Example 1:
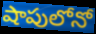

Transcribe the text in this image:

షాపులోనో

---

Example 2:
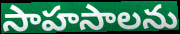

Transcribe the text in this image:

సాహసాలను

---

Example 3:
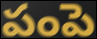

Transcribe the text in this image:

పంపె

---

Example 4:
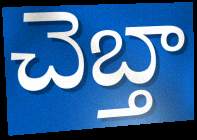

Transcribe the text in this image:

చెబ్తా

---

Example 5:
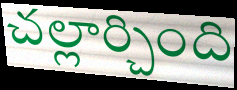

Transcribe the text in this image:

చల్లార్చింది